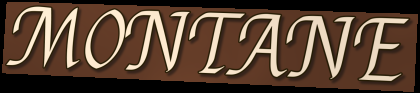
MONTANE